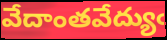
వేదాంతవేద్యుఁ